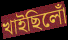
খাইছিলোঁ